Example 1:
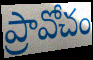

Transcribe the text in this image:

ప్రావోచం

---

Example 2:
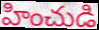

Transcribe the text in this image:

హించుడి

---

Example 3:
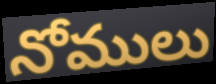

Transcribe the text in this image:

నోములు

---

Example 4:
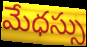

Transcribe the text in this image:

మేధస్సు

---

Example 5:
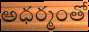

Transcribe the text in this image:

అధర్మంతో